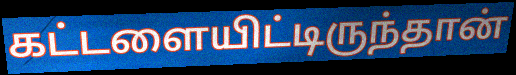
கட்டளையிட்டிருந்தான்